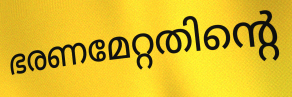
ഭരണമേറ്റതിന്റെ